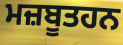
ਮਜ਼ਬੂਤਹਨ